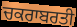
ਚਕਰਾਬਰਤੀ